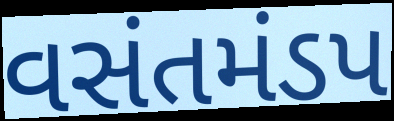
વસંતમંડપ